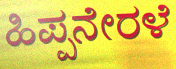
ಹಿಪ್ಪನೇರಳೆ